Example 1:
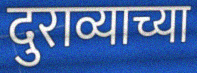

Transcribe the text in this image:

दुराव्याच्या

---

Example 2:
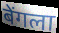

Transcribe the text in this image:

बेंगला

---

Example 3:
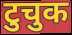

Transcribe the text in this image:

टुचुक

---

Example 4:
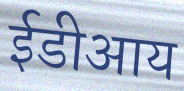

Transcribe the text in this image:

ईडीआय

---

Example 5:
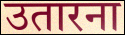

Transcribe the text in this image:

उतारना